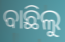
ବାଛିଲୁ